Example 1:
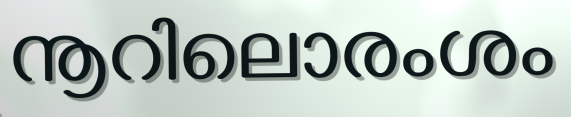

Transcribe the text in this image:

നൂറിലൊരംശം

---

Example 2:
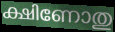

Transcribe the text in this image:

ക്ഷിണോതു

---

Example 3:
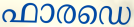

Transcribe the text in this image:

ഫാരഡെ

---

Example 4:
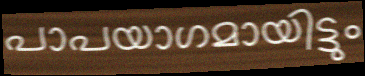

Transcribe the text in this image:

പാപയാഗമായിട്ടും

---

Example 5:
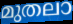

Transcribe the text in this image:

മുതലാ